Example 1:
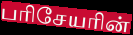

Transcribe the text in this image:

பரிசேயரின்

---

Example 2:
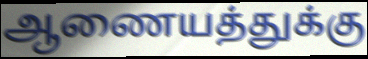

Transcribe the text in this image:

ஆணையத்துக்கு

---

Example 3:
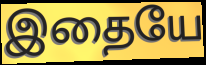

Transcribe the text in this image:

இதையே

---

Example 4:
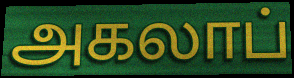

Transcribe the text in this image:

அகலாப்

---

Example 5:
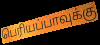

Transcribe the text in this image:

பெரியப்பாவுக்கு